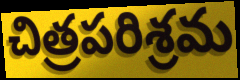
చిత్రపరిశ్రమ